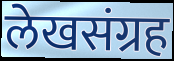
लेखसंग्रह